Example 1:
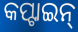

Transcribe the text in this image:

କପ୍ଟାଇନ୍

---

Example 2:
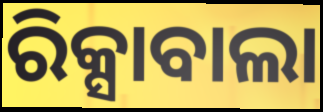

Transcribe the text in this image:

ରିକ୍ସାବାଲା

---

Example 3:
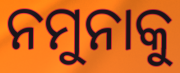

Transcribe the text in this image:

ନମୁନାକୁ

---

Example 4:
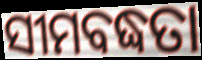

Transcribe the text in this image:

ସୀମବଦ୍ଧତା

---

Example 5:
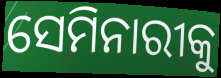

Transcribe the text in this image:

ସେମିନାରୀକୁ